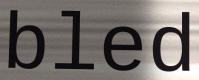
bled